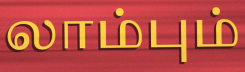
லாம்பும்